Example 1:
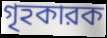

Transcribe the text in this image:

গৃহকারক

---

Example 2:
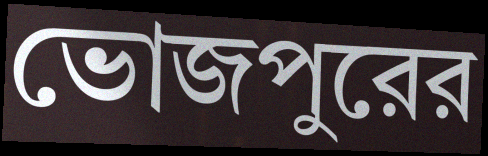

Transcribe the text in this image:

ভোজপুরের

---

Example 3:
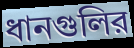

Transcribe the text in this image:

ধানগুলির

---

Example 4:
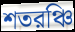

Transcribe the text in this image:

শতরঞ্চি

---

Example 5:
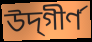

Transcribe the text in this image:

উদ্‌গীর্ণ